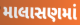
માલાસણમાં